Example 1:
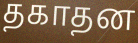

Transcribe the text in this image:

தகாதன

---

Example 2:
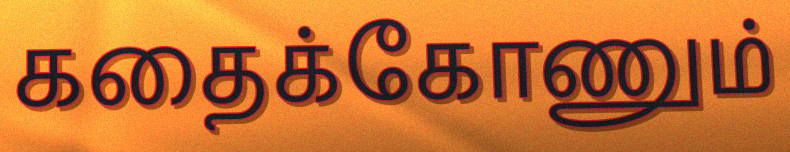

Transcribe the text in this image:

கதைக்கோணும்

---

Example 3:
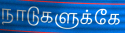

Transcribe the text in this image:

நாடுகளுக்கே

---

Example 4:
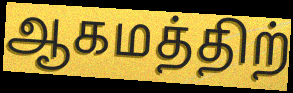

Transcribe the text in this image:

ஆகமத்திற்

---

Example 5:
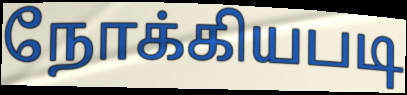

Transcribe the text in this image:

நோக்கியபடி